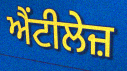
ਐਂਟੀਲੇਜ਼